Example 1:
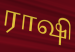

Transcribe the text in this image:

ராஷி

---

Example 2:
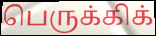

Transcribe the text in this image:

பெருக்கிக்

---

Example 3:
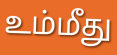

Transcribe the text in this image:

உம்மீது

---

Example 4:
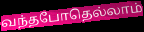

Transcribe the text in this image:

வந்தபோதெல்லாம்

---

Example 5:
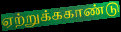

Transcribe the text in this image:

ஏற்றுக்ககாண்டு